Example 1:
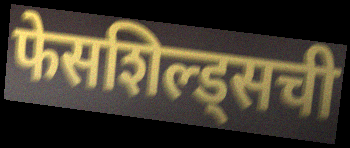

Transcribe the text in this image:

फेसशिल्ड्सची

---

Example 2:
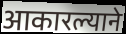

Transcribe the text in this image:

आकारल्याने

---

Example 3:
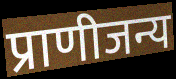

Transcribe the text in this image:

प्राणीजन्य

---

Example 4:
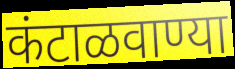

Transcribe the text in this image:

कंटाळवाण्या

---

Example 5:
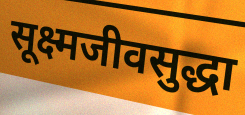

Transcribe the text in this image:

सूक्ष्मजीवसुद्धा